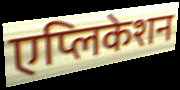
एप्लिकेशन